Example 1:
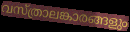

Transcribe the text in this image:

വസ്ത്രാലങ്കാരങ്ങളും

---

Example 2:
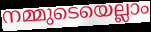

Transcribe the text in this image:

നമ്മുടെയെല്ലാം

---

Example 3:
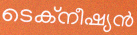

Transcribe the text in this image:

ടെക്നീഷ്യൻ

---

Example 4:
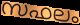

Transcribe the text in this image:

സഫലം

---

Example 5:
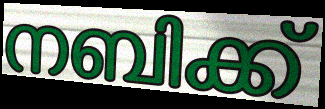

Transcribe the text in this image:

നബിക്ക്